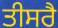
ਤੀਸਰੈ